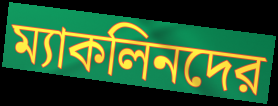
ম্যাকলিনদের